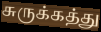
சுருக்கத்து